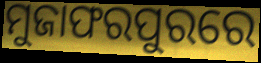
ମୁଜାଫରପୁରରେ